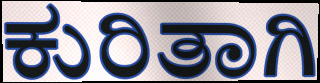
ಕುರಿತಾಗಿ